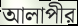
আলাপীর